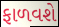
ફાળવશે